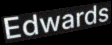
Edwards